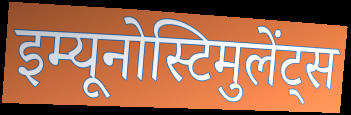
इम्यूनोस्टिमुलेंट्स